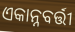
ଏକାନ୍ନବର୍ତ୍ତୀ